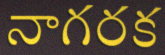
నాగరక